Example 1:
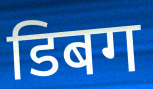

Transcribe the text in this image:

डिबग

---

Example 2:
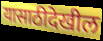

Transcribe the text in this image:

यासाठीदेखील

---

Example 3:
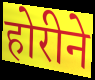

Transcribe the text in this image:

होरीने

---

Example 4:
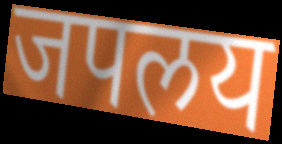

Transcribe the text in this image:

जपलय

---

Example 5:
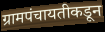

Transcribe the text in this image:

ग्रामपंचायतीकडून